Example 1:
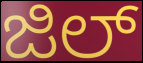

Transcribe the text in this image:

ಜಿಲ್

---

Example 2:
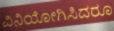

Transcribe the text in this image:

ವಿನಿಯೋಗಿಸಿದರೂ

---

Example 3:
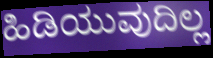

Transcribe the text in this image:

ಹಿಡಿಯುವುದಿಲ್ಲ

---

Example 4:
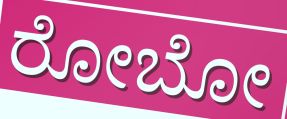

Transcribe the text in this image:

ರೋಬೋ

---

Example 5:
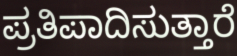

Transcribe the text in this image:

ಪ್ರತಿಪಾದಿಸುತ್ತಾರೆ